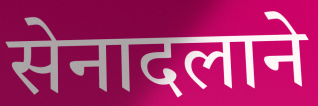
सेनादलाने